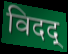
विदद्